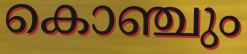
കൊഞ്ചും